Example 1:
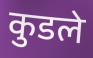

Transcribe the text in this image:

कुडले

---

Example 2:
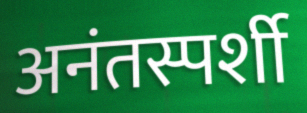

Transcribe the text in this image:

अनंतस्पर्शी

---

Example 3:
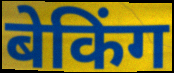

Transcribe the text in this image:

बेकिंग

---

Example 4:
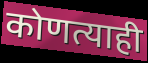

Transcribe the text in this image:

कोणत्याही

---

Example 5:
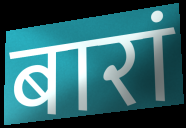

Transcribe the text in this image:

बारां